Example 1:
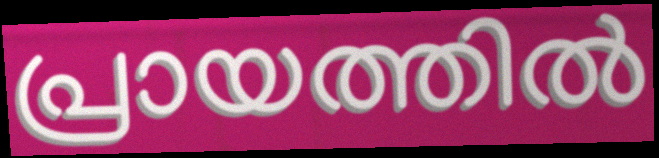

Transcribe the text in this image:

പ്രായത്തിൽ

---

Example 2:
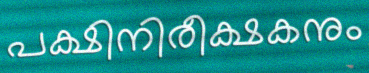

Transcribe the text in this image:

പക്ഷിനിരീക്ഷകനും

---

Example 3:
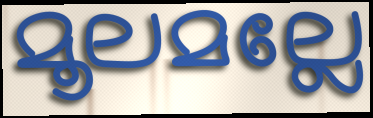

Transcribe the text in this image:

മൂലമല്ലേ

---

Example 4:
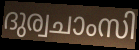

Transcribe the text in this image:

ദുര്വചാംസി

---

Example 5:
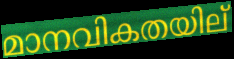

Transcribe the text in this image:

മാനവികതയില്